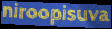
niroopisuva